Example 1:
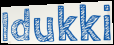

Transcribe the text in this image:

Idukki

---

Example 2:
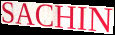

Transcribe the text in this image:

SACHIN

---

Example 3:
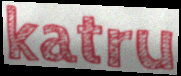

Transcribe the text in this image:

katru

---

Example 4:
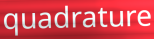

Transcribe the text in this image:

quadrature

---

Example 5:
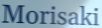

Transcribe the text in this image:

Morisaki